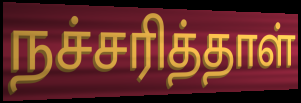
நச்சரித்தாள்